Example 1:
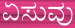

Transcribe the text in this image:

ಏಸುವು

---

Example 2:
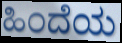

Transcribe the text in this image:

ಹಿಂದೆಯ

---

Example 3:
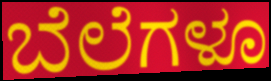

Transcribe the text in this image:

ಬೆಲೆಗಳೂ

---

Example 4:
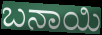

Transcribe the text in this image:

ಬನಾಯಿ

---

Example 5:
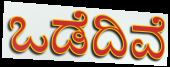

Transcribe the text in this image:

ಒಡೆದಿವೆ